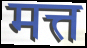
मत्त